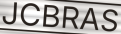
JCBRAS